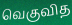
வெகுவித